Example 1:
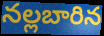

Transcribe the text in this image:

నల్లబారిన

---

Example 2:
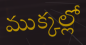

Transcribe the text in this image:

ముక్కల్లో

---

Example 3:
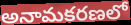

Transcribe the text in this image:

అనామకరణలో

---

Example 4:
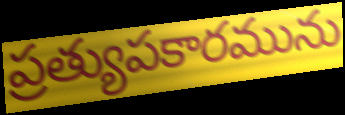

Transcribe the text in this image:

ప్రత్యుపకారమును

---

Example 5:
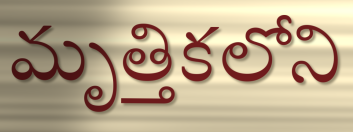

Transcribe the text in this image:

మృత్తికలోని